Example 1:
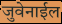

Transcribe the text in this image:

जुवेनाईल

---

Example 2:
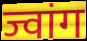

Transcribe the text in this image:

ज्वांग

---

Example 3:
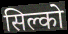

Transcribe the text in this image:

सिल्को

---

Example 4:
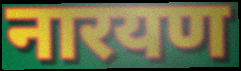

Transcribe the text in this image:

नारयण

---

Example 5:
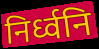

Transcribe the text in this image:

निर्ध्वनि